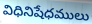
విధినిషేధములు